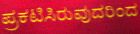
ಪ್ರಕಟಿಸಿರುವುದರಿಂದ